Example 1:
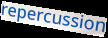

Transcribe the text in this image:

repercussion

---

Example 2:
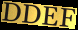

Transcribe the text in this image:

DDEF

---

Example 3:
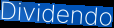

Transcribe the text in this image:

Dividendo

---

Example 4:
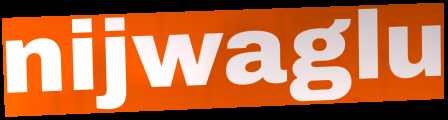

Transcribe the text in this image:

nijwaglu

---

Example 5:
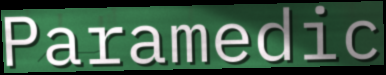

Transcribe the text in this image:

Paramedic